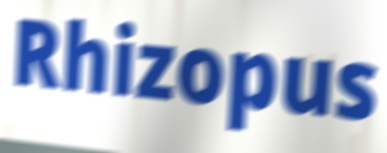
Rhizopus